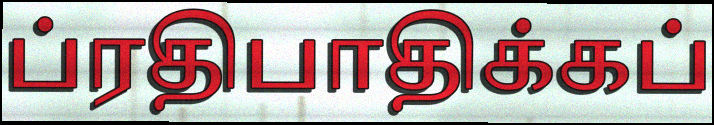
ப்ரதிபாதிக்கப்